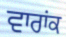
ਵਾਰਾਂਕ